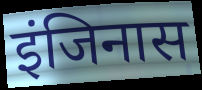
इंजिनास